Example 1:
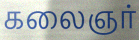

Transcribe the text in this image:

கலைஞர்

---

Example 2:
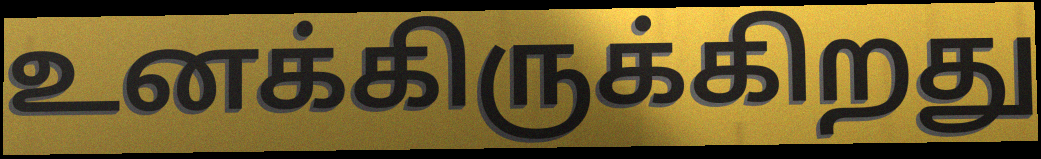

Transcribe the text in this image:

உனக்கிருக்கிறது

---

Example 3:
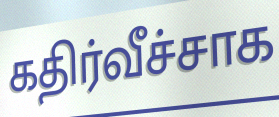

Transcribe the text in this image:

கதிர்வீச்சாக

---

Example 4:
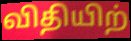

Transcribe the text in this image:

விதியிற்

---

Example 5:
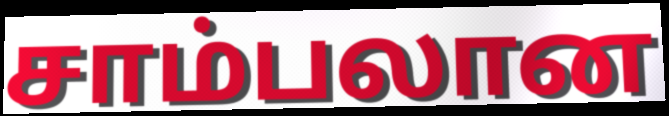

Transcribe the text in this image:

சாம்பலான